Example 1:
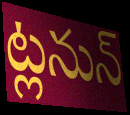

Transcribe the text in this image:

ట్లనున్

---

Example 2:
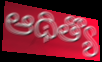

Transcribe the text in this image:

ఆథిత్యొ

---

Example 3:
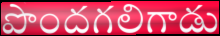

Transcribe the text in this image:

పొందగలిగాడు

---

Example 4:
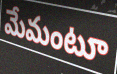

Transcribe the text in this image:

మేమంటూ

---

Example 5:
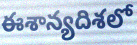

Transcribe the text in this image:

ఈశాన్యదిశలో